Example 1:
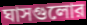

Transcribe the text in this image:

ঘাসগুলোর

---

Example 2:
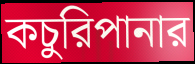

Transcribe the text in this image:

কচুরিপানার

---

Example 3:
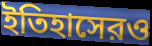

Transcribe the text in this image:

ইতিহাসেরও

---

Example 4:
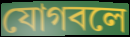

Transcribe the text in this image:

যোগবলে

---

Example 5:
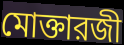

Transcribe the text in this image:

মোক্তারজী